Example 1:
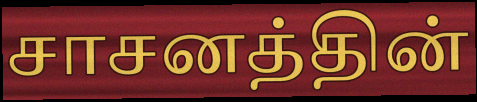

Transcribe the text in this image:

சாசனத்தின்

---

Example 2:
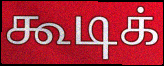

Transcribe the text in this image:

கூடிக்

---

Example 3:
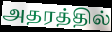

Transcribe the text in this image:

அதரத்தில்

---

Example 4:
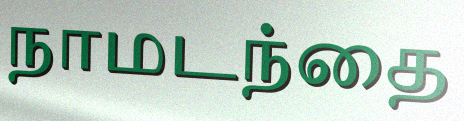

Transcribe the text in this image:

நாமடந்தை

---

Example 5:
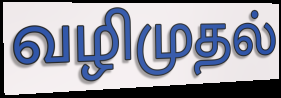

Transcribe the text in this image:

வழிமுதல்